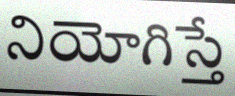
నియోగిస్తే